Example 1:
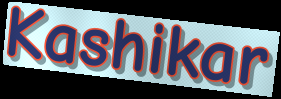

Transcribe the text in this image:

Kashikar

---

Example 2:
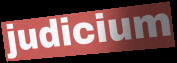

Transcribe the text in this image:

judicium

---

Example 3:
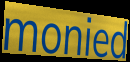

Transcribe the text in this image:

monied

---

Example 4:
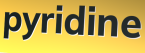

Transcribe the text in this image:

pyridine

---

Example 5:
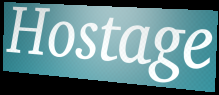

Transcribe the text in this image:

Hostage